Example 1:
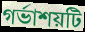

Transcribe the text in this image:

গর্ভাশয়টি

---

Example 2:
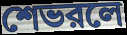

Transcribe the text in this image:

শেভরলে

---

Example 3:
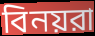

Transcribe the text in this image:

বিনয়রা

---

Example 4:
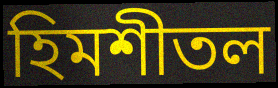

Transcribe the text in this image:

হিমশীতল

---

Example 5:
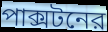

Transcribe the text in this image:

পাক্সটনের